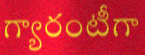
గ్యారంటీగా